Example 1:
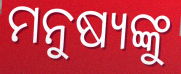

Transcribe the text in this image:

ମନୁଷ୍ୟଙ୍କୁ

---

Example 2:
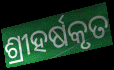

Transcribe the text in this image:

ଶ୍ରୀହର୍ଷକୃତ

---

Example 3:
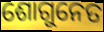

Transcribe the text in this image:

ଶୋଗୁନେତ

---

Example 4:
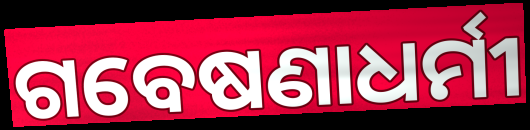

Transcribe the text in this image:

ଗବେଷଣାଧର୍ମୀ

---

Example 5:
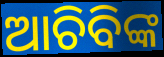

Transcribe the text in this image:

ଆଚିବିଙ୍କ